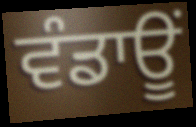
ਵੰਡਾਊਂ